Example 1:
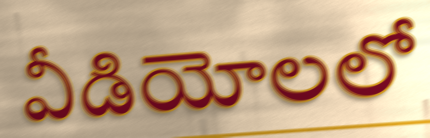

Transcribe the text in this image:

వీడియోలలో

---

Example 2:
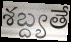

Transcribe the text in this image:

శబ్ద్యతే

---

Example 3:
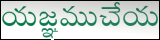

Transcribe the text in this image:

యజ్ఞముచేయ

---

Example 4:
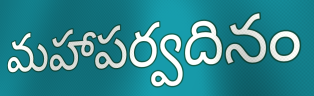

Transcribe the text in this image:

మహాపర్వదినం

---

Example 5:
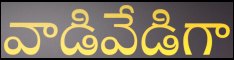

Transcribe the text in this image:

వాడివేడిగా